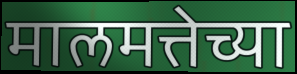
मालमत्तेच्या